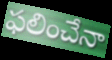
ఫలించేనా